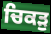
ਚਿਕੜੁ